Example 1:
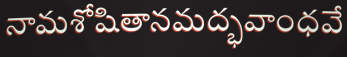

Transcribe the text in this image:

నామశోషితానమద్భవాంధవే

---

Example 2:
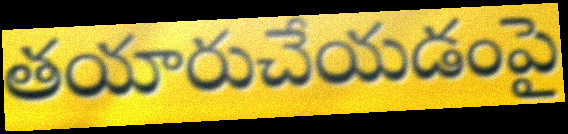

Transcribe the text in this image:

తయారుచేయడంపై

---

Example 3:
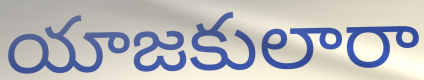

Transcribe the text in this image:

యాజకులారా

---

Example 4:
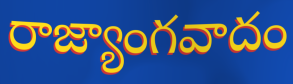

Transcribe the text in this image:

రాజ్యాంగవాదం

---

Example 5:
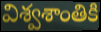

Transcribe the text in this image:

విశ్వశాంతికి